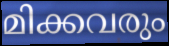
മിക്കവരും